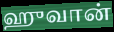
ஹுவான்